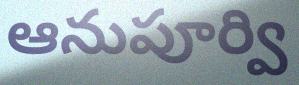
ఆనుపూర్వి